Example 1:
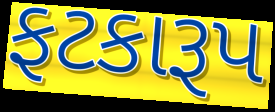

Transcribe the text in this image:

ફટકારૂપ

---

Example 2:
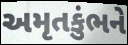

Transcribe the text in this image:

અમૃતકુંભને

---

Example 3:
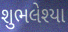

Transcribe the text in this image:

શુભલેશ્યા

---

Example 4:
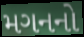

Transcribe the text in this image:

મગનનો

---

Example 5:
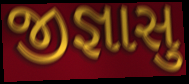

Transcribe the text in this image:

જીજ્ઞાસુ